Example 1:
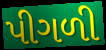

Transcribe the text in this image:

પીગળી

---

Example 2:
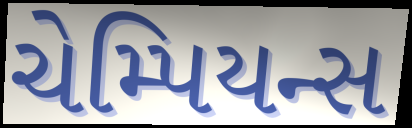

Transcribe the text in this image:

ચેમ્પિયન્સ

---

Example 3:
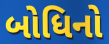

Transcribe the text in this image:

બોધિનો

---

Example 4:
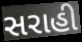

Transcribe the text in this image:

સરાહી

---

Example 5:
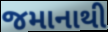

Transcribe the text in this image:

જમાનાથી